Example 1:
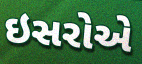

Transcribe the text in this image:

ઇસરોએ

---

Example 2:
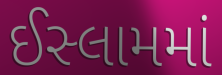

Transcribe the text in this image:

ઈસ્લામમાં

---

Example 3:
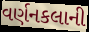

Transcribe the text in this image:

વર્ણનકલાની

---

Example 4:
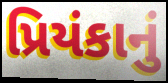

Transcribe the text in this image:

પ્રિયંકાનું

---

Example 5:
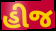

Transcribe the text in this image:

હીજ